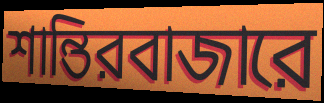
শান্তিরবাজারে